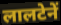
लालटेनें